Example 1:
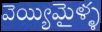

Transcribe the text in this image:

వెయ్యిమైళ్ళ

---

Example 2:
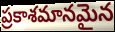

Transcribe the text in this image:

ప్రకాశమానమైన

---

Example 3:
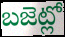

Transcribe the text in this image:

బజెట్లో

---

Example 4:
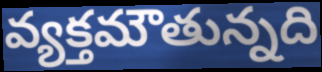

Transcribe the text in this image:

వ్యక్తమౌతున్నది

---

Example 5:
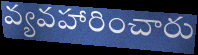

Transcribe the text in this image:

వ్యవహారించారు